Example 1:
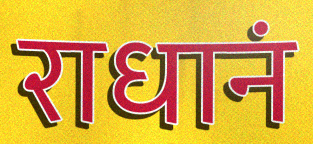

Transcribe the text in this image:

राधानं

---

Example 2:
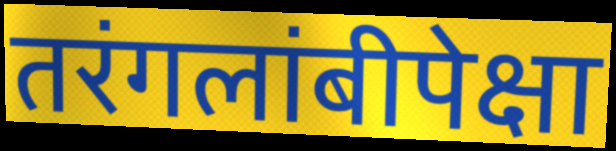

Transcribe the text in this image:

तरंगलांबीपेक्षा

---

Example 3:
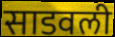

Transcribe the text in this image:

साडवली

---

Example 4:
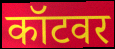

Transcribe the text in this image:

कॉटवर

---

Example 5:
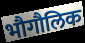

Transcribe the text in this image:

भौगौलिक